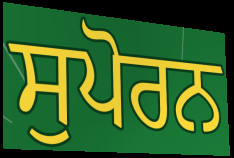
ਸੁਪੋਰਨ